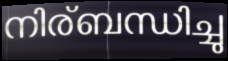
നിര്ബന്ധിച്ചു